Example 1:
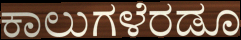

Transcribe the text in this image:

ಕಾಲುಗಳೆರಡೂ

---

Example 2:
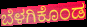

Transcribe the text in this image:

ಬೆಳಗಿಕೊಂಡ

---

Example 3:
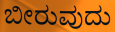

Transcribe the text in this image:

ಬೀರುವುದು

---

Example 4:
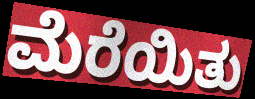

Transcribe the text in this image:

ಮೆರೆಯಿತು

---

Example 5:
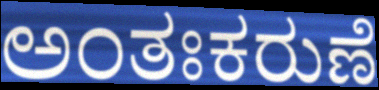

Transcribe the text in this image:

ಅಂತಃಕರುಣೆ